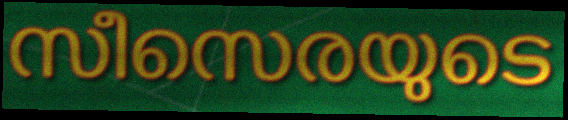
സീസെരയുടെ